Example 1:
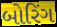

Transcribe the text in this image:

બોરિંગ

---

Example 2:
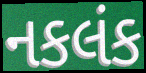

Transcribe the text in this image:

નકલંક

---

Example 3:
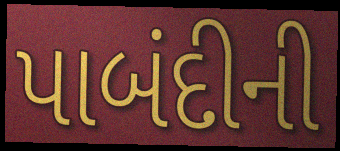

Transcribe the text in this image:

પાબંદીની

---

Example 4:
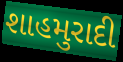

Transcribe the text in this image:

શાહમુરાદી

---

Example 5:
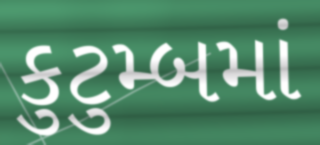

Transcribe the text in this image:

કુટુમ્બમાં